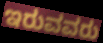
ಇರುವವರು